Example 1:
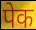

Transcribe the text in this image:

पेक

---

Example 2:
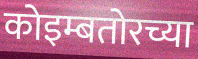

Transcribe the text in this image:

कोइम्बतोरच्या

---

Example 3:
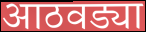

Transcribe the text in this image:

आठवड्या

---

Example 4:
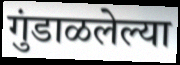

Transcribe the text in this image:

गुंडाळलेल्या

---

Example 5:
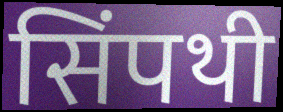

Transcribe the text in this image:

सिंपथी